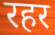
रहर